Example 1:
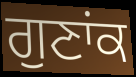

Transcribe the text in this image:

ਗੁਣਾਂਕ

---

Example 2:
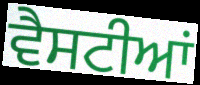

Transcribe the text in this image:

ਵੈਸਟੀਆਂ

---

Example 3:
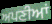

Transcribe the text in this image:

ਅਪਣੀਆਂ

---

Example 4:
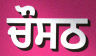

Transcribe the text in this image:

ਚੌਸਠ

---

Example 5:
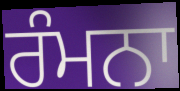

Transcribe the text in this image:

ਰੰਮਨਾ